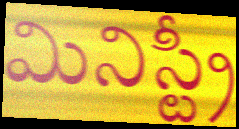
మినిస్ట్రీ